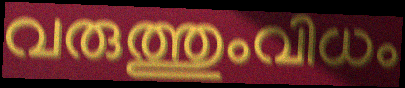
വരുത്തുംവിധം